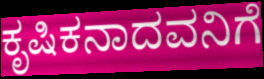
ಕೃಷಿಕನಾದವನಿಗೆ